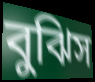
বুঝিস